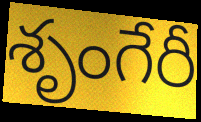
శృంగేరీ